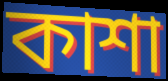
কাশা